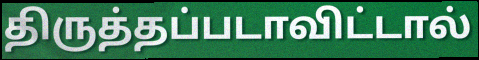
திருத்தப்படாவிட்டால்